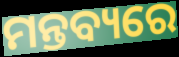
ମନ୍ତବ୍ୟରେ